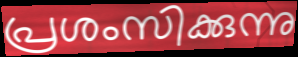
പ്രശംസിക്കുന്നു